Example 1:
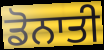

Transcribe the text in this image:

ਡੋਨਾਤੀ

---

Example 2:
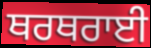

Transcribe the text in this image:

ਥਰਥਰਾਈ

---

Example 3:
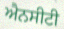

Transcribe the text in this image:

ਐਨਸੀਟੀ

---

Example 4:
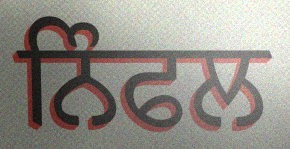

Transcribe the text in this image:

ਨਿੰਫਲ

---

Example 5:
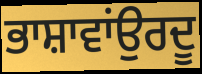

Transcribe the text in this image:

ਭਾਸ਼ਾਵਾਂਉਰਦੂ